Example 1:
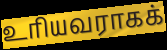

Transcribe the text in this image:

உரியவராகக்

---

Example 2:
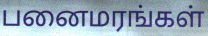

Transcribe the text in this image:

பனைமரங்கள்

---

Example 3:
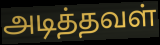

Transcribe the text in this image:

அடித்தவள்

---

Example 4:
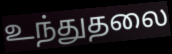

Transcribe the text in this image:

உந்துதலை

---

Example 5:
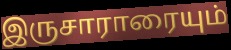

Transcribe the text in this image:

இருசாராரையும்